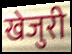
खेजुरी